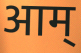
आम्